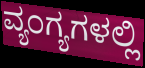
ವ್ಯಂಗ್ಯಗಳಲ್ಲಿ